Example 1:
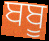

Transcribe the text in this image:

ਬਬੂ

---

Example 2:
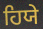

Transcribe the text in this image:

ਹਿਯੇ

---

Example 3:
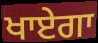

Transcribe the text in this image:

ਖਾਏਗਾ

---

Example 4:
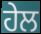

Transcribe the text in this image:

ਹੇਲ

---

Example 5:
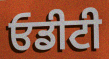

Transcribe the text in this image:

ਓਡੀਟੀ